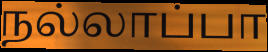
நல்லாப்பா